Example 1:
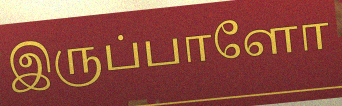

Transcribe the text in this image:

இருப்பாளோ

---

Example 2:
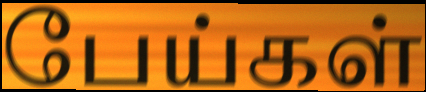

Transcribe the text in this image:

பேய்கள்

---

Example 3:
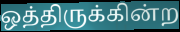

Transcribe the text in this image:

ஒத்திருக்கின்ற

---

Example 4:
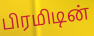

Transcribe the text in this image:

பிரமிடின்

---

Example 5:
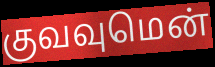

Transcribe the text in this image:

குவவுமென்